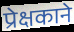
प्रेक्षकाने